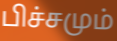
பிச்சமும்